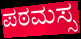
ಪಠಮಸ್ಸ